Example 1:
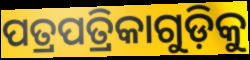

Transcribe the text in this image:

ପତ୍ରପତ୍ରିକାଗୁଡ଼ିକୁ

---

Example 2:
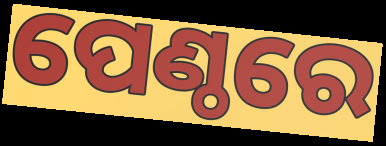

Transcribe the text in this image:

ପେଣ୍ଠରେ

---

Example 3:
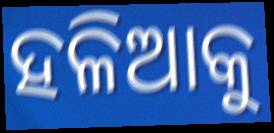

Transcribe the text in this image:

ହଳିଆକୁ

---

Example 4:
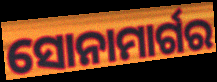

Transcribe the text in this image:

ସୋନାମାର୍ଗର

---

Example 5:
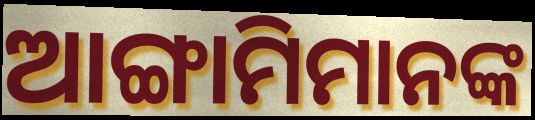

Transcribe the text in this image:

ଆଙ୍ଗାମିମାନଙ୍କ